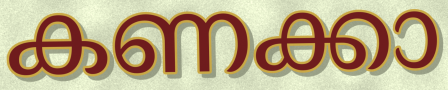
കണക്കാ